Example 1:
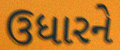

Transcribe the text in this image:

ઉધારને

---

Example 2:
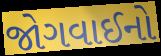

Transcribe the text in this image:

જોગવાઈનો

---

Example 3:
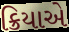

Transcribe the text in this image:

ક્રિયાએ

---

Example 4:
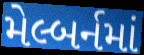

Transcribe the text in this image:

મેલ્બર્નમાં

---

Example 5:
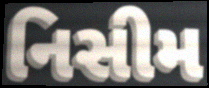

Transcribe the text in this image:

નિસીમ